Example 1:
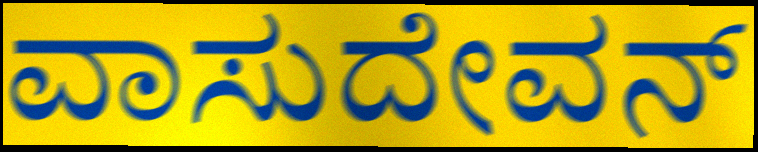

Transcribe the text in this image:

ವಾಸುದೇವನ್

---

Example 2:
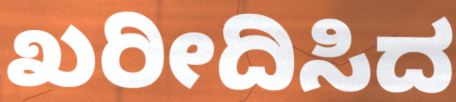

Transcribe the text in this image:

ಖರೀದಿಸಿದ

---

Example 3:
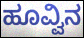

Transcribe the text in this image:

ಹೂವ್ವಿನ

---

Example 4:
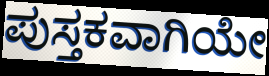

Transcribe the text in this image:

ಪುಸ್ತಕವಾಗಿಯೇ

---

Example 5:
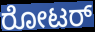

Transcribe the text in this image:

ರೋಟರ್